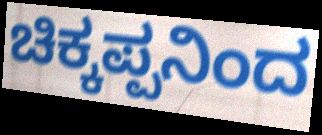
ಚಿಕ್ಕಪ್ಪನಿಂದ